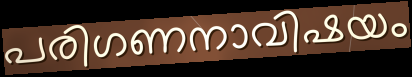
പരിഗണനാവിഷയം